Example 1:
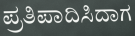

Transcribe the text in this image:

ಪ್ರತಿಪಾದಿಸಿದಾಗ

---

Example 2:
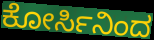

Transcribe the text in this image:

ಕೋರ್ಸಿನಿಂದ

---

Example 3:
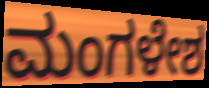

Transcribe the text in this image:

ಮಂಗಳೇಶ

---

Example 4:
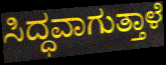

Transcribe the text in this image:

ಸಿದ್ಧವಾಗುತ್ತಾಳೆ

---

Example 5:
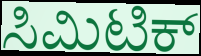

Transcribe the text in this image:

ಸಿಮಿಟಿಕ್